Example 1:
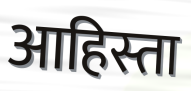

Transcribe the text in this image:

आहिस्‍ता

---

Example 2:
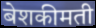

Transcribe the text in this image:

बेशकीमती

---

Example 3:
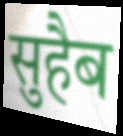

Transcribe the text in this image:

सुहैब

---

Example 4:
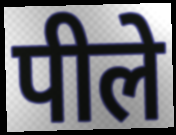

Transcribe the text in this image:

पीले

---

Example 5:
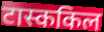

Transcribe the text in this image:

टास्ककिल